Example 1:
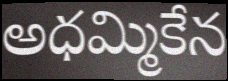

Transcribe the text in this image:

అధమ్మికేన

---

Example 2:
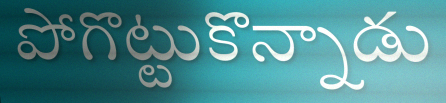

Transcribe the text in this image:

పోగొట్టుకొన్నాడు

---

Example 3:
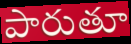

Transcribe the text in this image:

పారుతూ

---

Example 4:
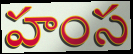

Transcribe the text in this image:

హంస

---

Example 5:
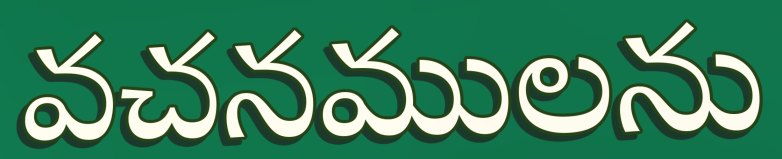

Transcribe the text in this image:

వచనములను